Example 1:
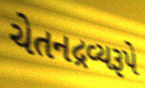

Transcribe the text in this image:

ચેતનદ્રવ્યરૂપે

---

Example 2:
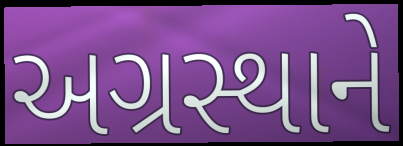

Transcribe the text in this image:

અગ્રસ્થાને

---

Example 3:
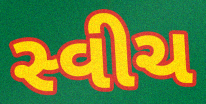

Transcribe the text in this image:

સ્વીચ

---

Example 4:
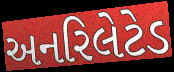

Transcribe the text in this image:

અનરિલેટેડ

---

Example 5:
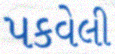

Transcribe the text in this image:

પકવેલી